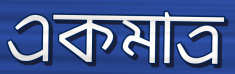
একমাত্র